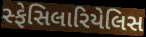
સ્ફેસિલારિયેલિસ